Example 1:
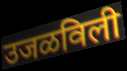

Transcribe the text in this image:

उजळविली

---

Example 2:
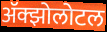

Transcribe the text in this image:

ॲक्झोलोटल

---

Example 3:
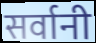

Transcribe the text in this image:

सर्वानी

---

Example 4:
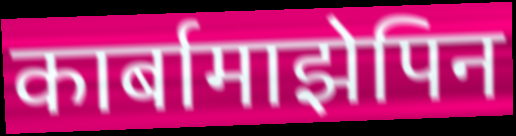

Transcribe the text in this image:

कार्बामाझेपिन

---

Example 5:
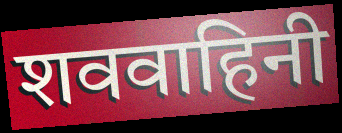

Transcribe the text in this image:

शववाहिनी